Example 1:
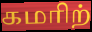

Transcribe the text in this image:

கமரிற்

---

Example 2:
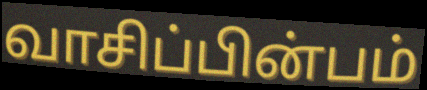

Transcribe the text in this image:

வாசிப்பின்பம்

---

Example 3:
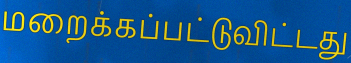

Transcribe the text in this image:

மறைக்கப்பட்டுவிட்டது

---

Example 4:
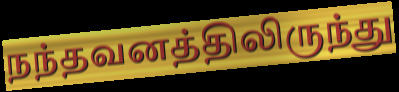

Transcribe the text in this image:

நந்தவனத்திலிருந்து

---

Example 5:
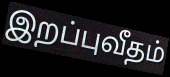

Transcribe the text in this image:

இறப்புவீதம்